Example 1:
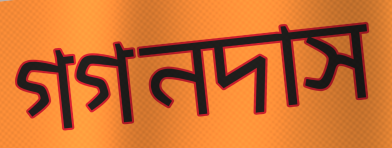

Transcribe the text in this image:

গগনদাস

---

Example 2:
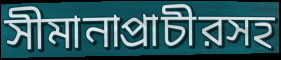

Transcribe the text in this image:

সীমানাপ্রাচীরসহ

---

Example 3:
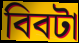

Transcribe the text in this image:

বিবটা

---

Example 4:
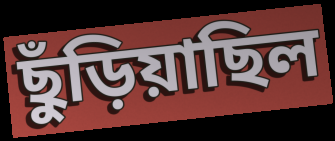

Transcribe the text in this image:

ছুঁড়িয়াছিল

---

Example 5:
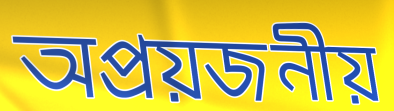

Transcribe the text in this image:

অপ্রয়জনীয়